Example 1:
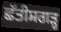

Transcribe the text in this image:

ਛੱਤੀਸ਼ਗੜ੍ਹ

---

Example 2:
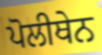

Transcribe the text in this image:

ਪੋਲੀਥੇਨ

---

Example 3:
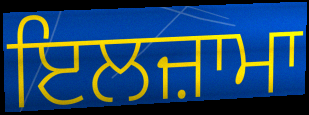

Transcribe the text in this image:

ਇਲਜ਼ਾਮਾ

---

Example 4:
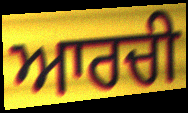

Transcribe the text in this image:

ਆਰਚੀ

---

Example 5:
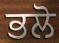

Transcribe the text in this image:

ਭਲੋ